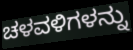
ಚಳವಳಿಗಳನ್ನು